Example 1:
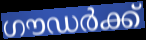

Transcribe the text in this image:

ഗൗഡർക്ക്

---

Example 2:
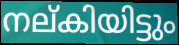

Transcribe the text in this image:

നല്കിയിട്ടും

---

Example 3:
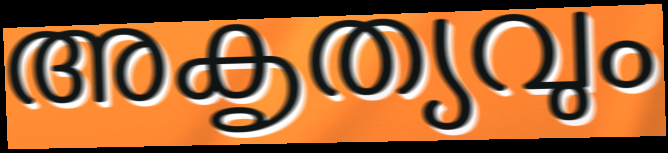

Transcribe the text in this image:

അകൃത്യവും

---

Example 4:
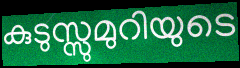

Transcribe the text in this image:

കുടുസ്സുമുറിയുടെ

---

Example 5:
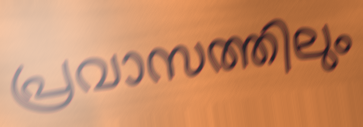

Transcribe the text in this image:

പ്രവാസത്തിലും